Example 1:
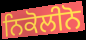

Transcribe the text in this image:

ਨਿਕੋਲੀਨੋ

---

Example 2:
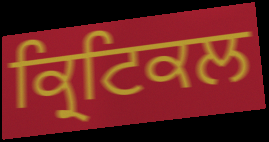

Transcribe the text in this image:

ਕ੍ਰਿਟਿਕਲ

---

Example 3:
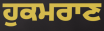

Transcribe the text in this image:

ਹੁਕਮਰਾਣ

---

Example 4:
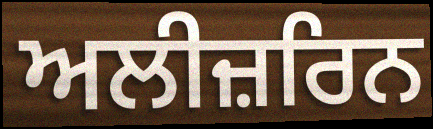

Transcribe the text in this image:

ਅਲੀਜ਼ਰਿਨ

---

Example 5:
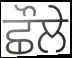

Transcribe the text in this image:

ਛੌਲੇ